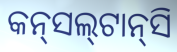
କନ୍‌ସଲ୍‌ଟାନ୍‌ସି